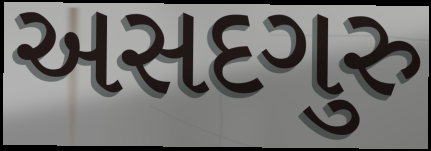
અસદગુરુ